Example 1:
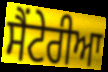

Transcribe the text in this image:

ਸੈਂਟੇਰੀਆ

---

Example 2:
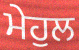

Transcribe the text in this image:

ਮੇਹੁਲ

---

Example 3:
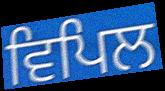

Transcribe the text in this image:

ਵਿਪਿਲ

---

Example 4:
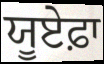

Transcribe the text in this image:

ਯੂਏਫ਼ਾ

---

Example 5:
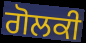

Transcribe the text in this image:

ਗੋਲਕੀ